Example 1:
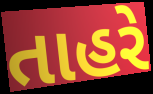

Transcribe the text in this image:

તાહરે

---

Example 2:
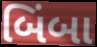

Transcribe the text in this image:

બિંબા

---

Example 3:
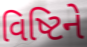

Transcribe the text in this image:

વિષ્ટિને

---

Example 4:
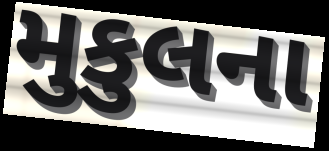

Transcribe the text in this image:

મુકુલના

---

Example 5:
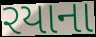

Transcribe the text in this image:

રયાના